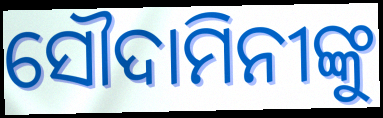
ସୌଦାମିନୀଙ୍କୁ